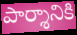
పార్శానికి